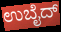
ಉಬೈದ್